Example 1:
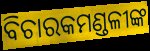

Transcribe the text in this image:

ବିଚାରକମଣ୍ଡଳୀଙ୍କ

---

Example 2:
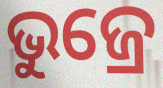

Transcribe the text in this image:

ଭୁଜ୍ରେ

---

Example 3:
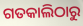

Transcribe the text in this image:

ଗତକାଲିଠାରୁ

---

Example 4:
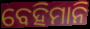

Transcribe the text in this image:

ବେହିମାନି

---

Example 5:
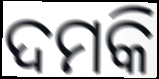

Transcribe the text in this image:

ଦମକି